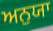
ਅਨੁਯਾ